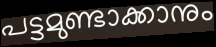
പട്ടമുണ്ടാക്കാനും